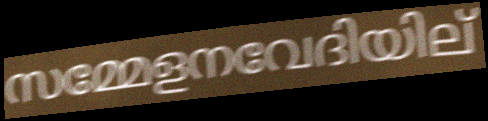
സമ്മേളനവേദിയില്